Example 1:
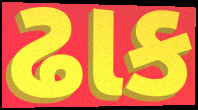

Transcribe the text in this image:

ઢાક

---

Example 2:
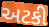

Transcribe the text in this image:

અટકી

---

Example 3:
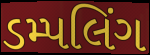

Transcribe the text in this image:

ડમ્પલિંગ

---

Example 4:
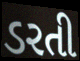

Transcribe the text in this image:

ડરતી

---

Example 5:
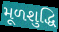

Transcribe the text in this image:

મૂળશુદ્ધિ